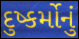
દુષ્કર્મોનું